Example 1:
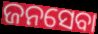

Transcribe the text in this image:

ଜନସେବା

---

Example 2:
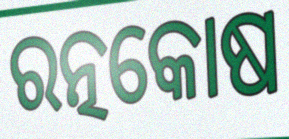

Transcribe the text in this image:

ରତ୍ନକୋଷ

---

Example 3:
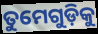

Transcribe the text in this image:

ତୁମେଗୁଡ଼ିକୁ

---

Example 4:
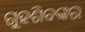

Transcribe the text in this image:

ଗୁହଶିବଙ୍କର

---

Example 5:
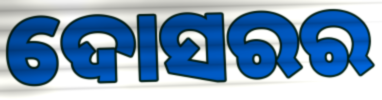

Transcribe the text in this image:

ଦୋସରର